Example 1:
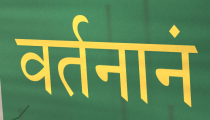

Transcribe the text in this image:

वर्तनानं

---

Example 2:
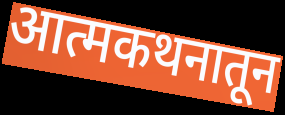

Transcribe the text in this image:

आत्मकथनातून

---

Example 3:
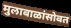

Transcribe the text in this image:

मुलाबाळांसोबत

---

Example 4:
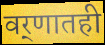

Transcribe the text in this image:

वर्णातही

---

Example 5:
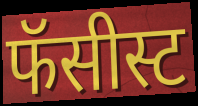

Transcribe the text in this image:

फॅसीस्ट